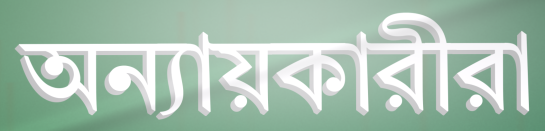
অন্যায়কারীরা